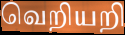
வெறியறி